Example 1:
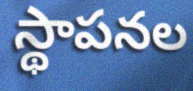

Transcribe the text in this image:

స్థాపనల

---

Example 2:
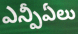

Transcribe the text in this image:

ఎన్పీఏలు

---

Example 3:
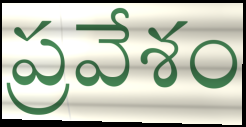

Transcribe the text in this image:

ప్రవేశం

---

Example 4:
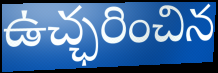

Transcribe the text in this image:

ఉచ్ఛరించిన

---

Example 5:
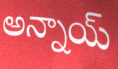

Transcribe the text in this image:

అన్నాయ్